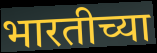
भारतीच्‍या